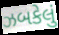
ઝબકેલું